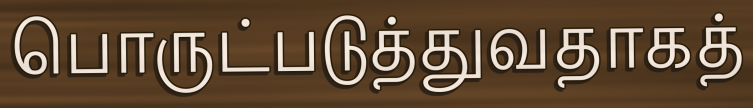
பொருட்படுத்துவதாகத்